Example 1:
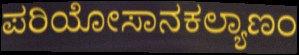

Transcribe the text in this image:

ಪರಿಯೋಸಾನಕಲ್ಯಾಣಂ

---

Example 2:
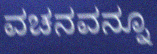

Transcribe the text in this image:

ವಚನವನ್ನೂ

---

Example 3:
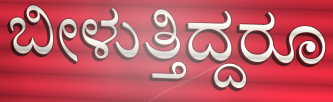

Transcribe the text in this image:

ಬೀಳುತ್ತಿದ್ದರೂ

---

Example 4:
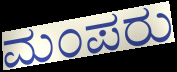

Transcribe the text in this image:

ಮಂಪರು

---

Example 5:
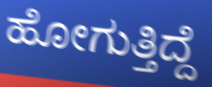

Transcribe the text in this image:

ಹೋಗುತ್ತಿದ್ದೆ